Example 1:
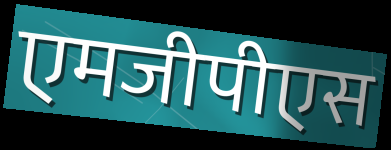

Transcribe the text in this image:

एमजीपीएस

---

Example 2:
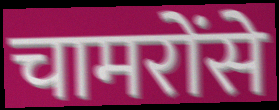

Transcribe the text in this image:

चामरोंसे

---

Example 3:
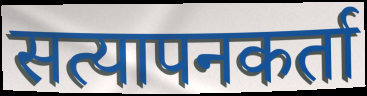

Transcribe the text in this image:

सत्यापनकर्ता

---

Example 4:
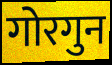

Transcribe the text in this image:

गोरगुन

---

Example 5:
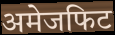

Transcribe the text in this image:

अमेजफिट